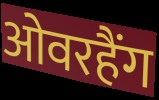
ओवरहैंग